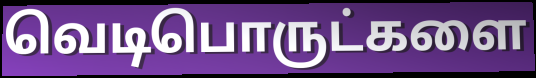
வெடிபொருட்களை